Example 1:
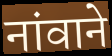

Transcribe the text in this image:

नांवाने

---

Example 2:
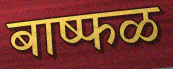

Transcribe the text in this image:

बाष्फळ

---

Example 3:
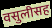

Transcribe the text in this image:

वसुलीसह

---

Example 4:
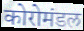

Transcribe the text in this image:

कोरोमंडल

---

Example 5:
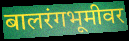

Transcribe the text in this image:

बालरंगभूमीवर